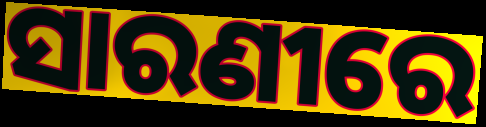
ସାରଣୀରେ